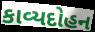
કાવ્યદોહન